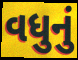
વધુનું